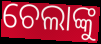
ଚେଲାଙ୍କୁ